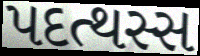
પદત્થસ્સ